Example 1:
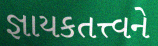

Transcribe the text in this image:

જ્ઞાયકતત્ત્વને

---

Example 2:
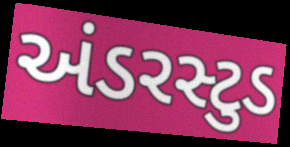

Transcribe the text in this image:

અંડરસ્ટુડ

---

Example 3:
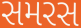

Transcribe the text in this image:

સમરસ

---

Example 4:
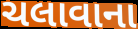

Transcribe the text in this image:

ચલાવાના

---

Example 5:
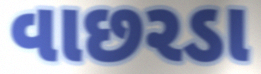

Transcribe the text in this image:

વાછરડા